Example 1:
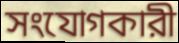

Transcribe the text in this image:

সংযোগকারী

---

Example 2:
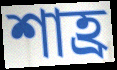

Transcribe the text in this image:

শাহ্র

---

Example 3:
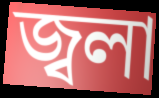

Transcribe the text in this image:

জ্বলা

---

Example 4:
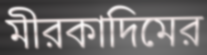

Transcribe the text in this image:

মীরকাদিমের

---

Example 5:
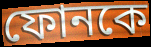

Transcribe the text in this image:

ফোনকে